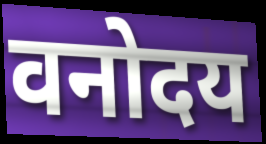
वनोदय